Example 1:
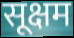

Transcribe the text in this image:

सूक्षम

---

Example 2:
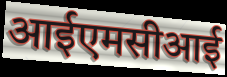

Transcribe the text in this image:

आईएमसीआई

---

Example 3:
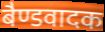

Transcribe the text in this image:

बैण्डवादक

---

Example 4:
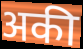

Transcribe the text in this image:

अकी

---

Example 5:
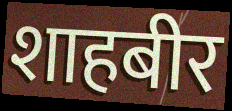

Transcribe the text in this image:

शाहबीर